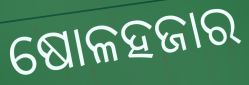
ଷୋଳହଜାର